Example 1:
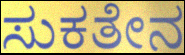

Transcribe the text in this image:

ಸುಕತೇನ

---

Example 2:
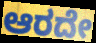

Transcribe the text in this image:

ಆರದೇ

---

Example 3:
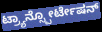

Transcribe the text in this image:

ಟ್ರ್ಯಾನ್ಸ್ಪೋರ್ಟೇಷನ್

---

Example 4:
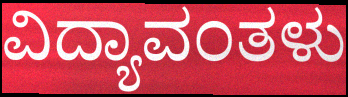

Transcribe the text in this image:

ವಿದ್ಯಾವಂತಳು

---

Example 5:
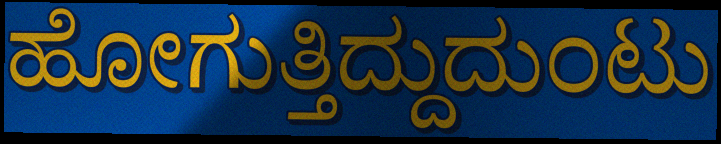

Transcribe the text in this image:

ಹೋಗುತ್ತಿದ್ದುದುಂಟು